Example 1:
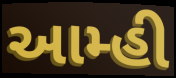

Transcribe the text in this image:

આમ્હી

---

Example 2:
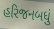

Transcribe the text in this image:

હરિજનબધું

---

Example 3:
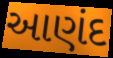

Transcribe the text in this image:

આણંદ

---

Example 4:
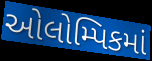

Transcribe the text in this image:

ઓલોમ્પિકમાં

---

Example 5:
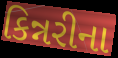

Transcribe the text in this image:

કિન્નરીના